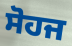
ਸੋਹਜ